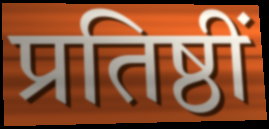
प्रतिष्ठीं